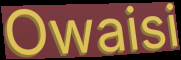
Owaisi